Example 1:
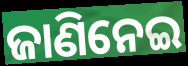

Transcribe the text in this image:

ଜାଣିନେଇ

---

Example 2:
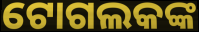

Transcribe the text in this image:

ଟୋଗଲକଙ୍କ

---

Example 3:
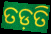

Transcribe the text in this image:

ତଡ଼ତି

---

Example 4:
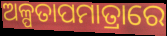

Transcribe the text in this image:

ଅଳ୍ପତାପମାତ୍ରାରେ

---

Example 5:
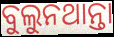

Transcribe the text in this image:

ବୁଲୁନଥାନ୍ତା